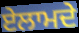
ਏਲਾਮਦੇ